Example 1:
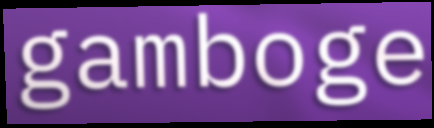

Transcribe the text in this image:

gamboge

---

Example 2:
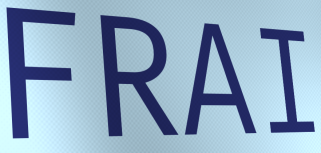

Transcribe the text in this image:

FRAI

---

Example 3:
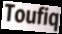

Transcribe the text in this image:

Toufiq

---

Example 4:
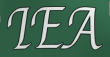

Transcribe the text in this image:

IEA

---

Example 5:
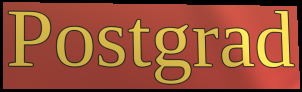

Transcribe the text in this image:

Postgrad